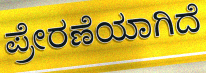
ಪ್ರೇರಣೆಯಾಗಿದೆ